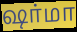
ஷர்மா